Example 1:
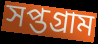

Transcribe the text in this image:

সপ্তগ্রাম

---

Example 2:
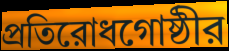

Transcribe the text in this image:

প্রতিরোধগোষ্ঠীর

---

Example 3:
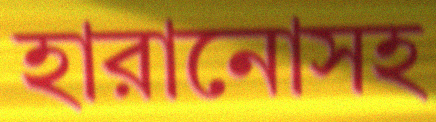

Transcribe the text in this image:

হারানোসহ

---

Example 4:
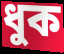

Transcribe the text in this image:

ধুক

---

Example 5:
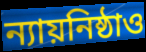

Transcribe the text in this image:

ন্যায়নিষ্ঠাও